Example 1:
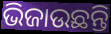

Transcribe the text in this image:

ଭିଜାଉଛନ୍ତି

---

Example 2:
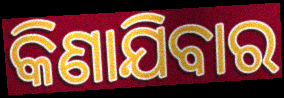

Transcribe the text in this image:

କିଣାଯିବାର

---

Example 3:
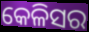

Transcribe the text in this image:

କେଳିସର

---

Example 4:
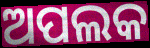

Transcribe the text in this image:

ଅପଲକ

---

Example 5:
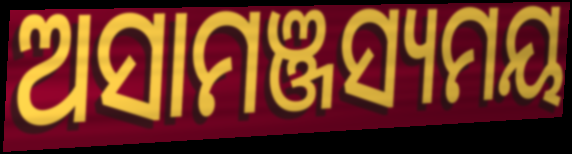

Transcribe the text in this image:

ଅସାମଞ୍ଜସ୍ୟମୟ